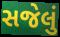
સજેલું